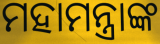
ମହାମନ୍ତ୍ରାଙ୍କ